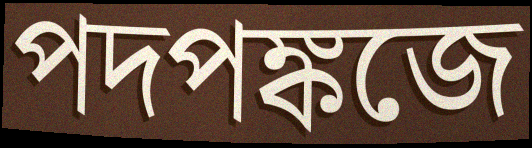
পদপঙ্কজে